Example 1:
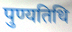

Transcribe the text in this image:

पुण्यतिथि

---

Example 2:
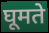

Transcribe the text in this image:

घूमते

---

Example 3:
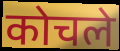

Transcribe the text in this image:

कोचले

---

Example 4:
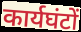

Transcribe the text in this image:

कार्यघंटों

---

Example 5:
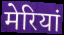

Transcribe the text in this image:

मेरियां